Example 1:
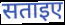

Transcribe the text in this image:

सताइए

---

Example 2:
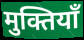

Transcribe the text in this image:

मुक्तियाँ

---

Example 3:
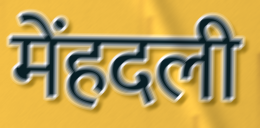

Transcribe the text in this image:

मेंहदली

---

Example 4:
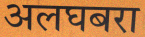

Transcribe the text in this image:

अलघबरा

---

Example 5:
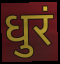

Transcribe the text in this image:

धुरं